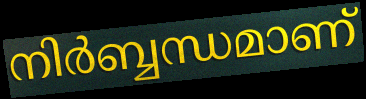
നിർബ്ബന്ധമാണ്